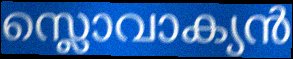
സ്ലൊവാക്യൻ